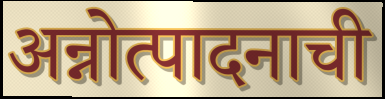
अन्नोत्पादनाची